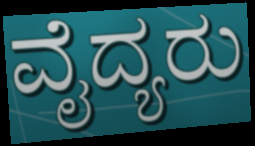
ವೈದ್ಯರು